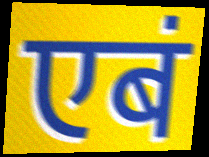
एबं